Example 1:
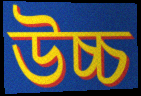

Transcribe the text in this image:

উচ্চ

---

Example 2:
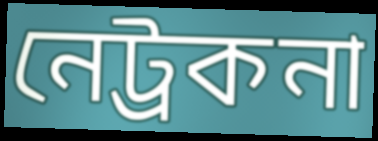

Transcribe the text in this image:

নেট্ৰকনা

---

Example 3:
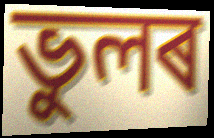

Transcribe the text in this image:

ভুলৰ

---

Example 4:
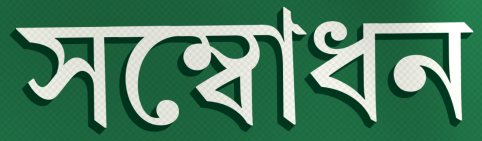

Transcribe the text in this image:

সম্বোধন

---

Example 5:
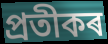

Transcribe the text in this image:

প্ৰতীকৰ